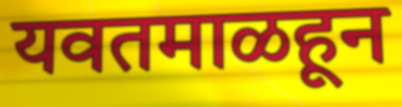
यवतमाळहून